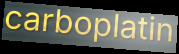
carboplatin